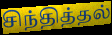
சிந்தித்தல்